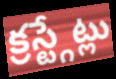
క్రస్ట్గేట్లు